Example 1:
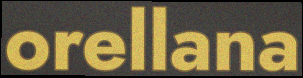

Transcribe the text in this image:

orellana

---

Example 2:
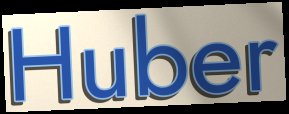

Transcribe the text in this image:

Huber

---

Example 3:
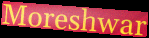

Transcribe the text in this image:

Moreshwar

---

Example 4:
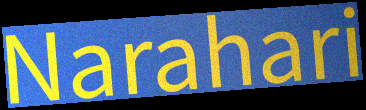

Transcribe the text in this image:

Narahari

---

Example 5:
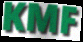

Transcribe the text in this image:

KMF